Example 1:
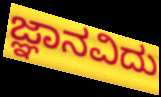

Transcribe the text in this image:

ಜ್ಞಾನವಿದು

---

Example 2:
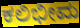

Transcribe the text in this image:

ಕಲಿಭೀಮ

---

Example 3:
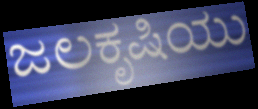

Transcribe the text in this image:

ಜಲಕೃಷಿಯು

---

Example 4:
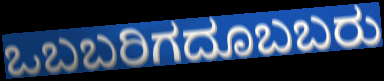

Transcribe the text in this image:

ಒಬಬರಿಗದೂಬಬರು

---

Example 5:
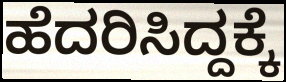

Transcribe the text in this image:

ಹೆದರಿಸಿದ್ದಕ್ಕೆ